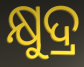
କ୍ଷୁଦ୍ର